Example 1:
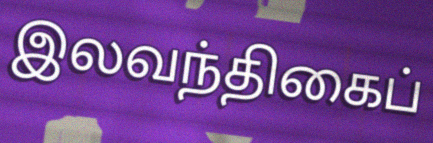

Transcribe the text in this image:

இலவந்திகைப்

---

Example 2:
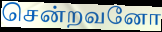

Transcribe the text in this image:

சென்றவனோ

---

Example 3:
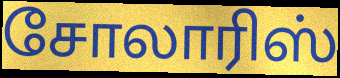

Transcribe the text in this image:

சோலாரிஸ்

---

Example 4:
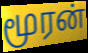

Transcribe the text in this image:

மூரன்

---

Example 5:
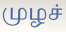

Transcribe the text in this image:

முழச்